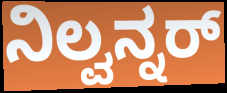
ನಿಲ್ವನ್ನರ್